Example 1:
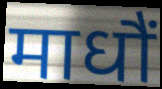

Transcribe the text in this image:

माधौं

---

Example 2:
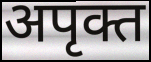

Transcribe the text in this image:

अपृक्त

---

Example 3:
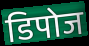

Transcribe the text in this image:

डिपोज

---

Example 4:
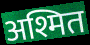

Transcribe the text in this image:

अश्मित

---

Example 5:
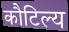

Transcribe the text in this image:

कौटिल्य